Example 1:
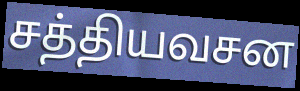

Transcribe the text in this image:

சத்தியவசன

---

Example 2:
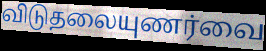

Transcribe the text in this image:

விடுதலையுணர்வை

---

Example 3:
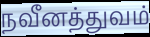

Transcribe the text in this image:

நவீனத்துவம்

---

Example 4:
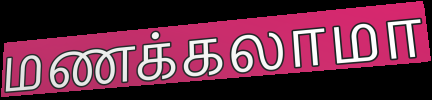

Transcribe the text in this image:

மணக்கலாமா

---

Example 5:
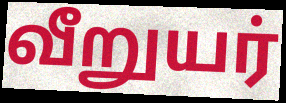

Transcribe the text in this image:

வீறுயர்